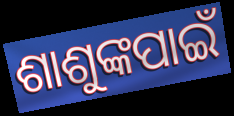
ଶାଶୁଙ୍କପାଇଁ